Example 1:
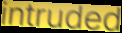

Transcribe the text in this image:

intruded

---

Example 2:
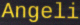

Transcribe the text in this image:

Angeli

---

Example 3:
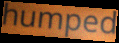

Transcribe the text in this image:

humped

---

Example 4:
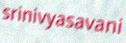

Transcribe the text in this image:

srinivyasavani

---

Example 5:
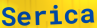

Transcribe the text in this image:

Serica